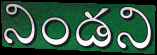
నిండని